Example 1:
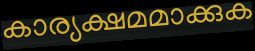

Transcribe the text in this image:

കാര്യക്ഷമമാക്കുക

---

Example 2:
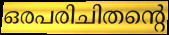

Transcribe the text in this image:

ഒരപരിചിതന്റെ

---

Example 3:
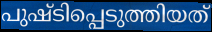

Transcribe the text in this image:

പുഷ്ടിപ്പെടുത്തിയത്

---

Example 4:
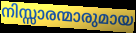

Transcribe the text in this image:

നിസ്സാരന്മാരുമായ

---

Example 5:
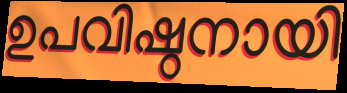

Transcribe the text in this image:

ഉപവിഷ്ഠനായി